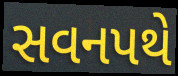
સવનપથે